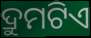
ଦ୍ରୁମଟିଏ